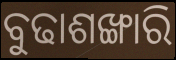
ବୁଢାଶଙ୍ଖାରି